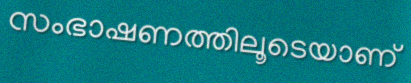
സംഭാഷണത്തിലൂടെയാണ്